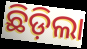
ଛିଡ଼ିଲା